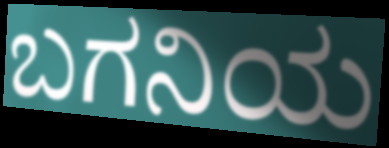
ಬಗನಿಯ